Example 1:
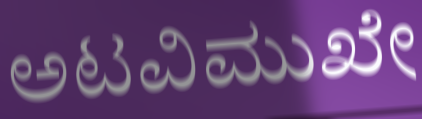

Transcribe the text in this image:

ಅಟವಿಮುಖೇ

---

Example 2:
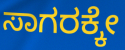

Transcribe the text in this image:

ಸಾಗರಕ್ಕೇ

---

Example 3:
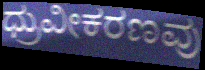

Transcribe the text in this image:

ಧ್ರುವೀಕರಣವು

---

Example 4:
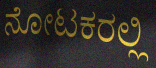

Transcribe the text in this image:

ನೋಟಕರಲ್ಲಿ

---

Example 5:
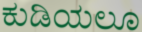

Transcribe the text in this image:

ಕುಡಿಯಲೂ